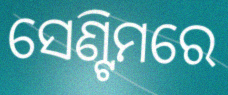
ସେଣ୍ଟିମରେ